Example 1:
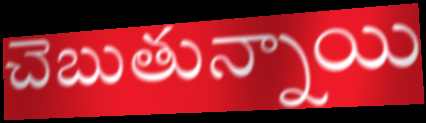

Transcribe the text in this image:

చెబుతున్నాయి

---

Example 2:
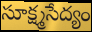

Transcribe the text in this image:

సూక్ష్మసేద్యం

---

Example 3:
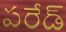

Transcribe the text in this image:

పరేడ్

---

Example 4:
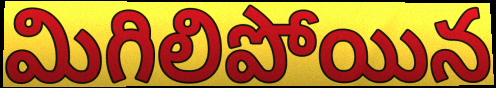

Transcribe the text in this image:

మిగిలిపోయిన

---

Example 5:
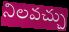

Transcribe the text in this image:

నిలవచ్చు